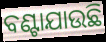
ବଣ୍ଟାଯାଉଛି